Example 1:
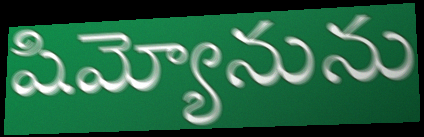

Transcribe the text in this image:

షిమ్యోనును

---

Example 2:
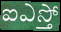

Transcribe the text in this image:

ఐఎస్తో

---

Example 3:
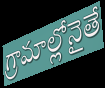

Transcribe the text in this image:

గ్రామాల్లోనైతే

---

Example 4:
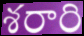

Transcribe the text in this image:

శరారి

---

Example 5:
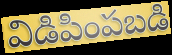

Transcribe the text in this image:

విడిపింపబడి